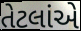
તેટલાંએ